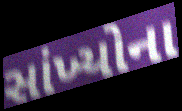
સાંખ્યોના